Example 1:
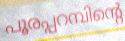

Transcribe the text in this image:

പൂരപ്പറമ്പിന്റെ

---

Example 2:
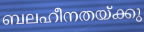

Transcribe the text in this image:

ബലഹീനതയ്ക്കു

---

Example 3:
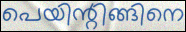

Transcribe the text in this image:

പെയിന്റിങ്ങിനെ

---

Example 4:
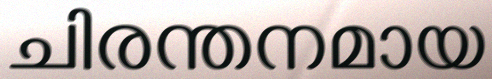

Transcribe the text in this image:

ചിരന്തനമായ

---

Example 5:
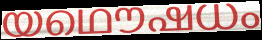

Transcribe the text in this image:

യഥൌഷധം